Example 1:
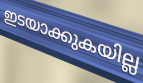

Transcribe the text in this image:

ഇടയാക്കുകയില്ല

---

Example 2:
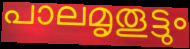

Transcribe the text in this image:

പാലമൃതൂട്ടും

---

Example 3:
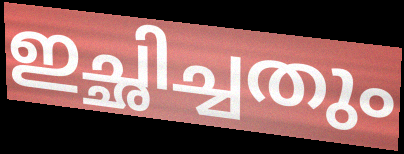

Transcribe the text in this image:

ഇച്ഛിച്ചതും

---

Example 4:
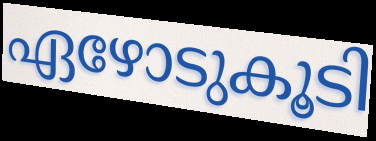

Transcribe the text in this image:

ഏഴോടുകൂടി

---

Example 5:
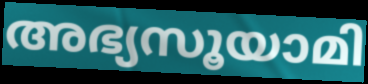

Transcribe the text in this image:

അഭ്യസൂയാമി